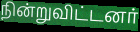
நின்றுவிட்டனர்